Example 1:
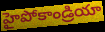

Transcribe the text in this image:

హైపోకాండ్రియా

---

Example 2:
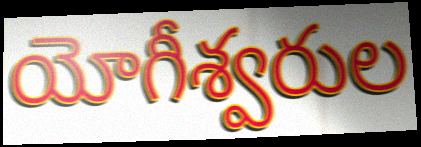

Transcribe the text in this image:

యోగీశ్వరుల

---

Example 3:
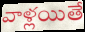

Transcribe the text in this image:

వాళ్లయితే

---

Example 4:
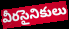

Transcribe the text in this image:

వీరసైనికులు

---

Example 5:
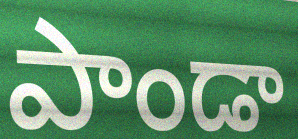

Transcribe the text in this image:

పాండా